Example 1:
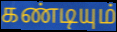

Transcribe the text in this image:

கண்டியும்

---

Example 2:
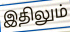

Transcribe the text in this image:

இதிலும்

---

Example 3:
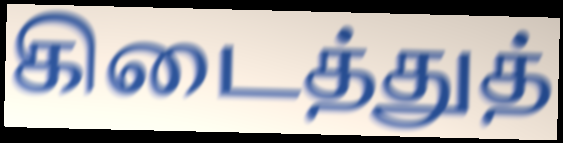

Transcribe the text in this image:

கிடைத்துத்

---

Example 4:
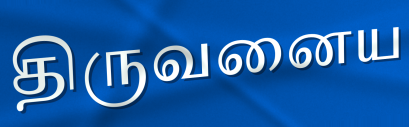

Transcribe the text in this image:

திருவனைய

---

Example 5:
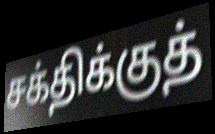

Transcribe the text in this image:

சக்திக்குத்